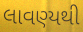
લાવણ્યથી